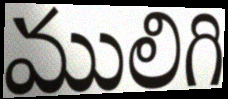
ములిగి